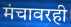
मंचावरही